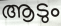
ആടും